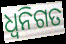
ଧ୍ୱନିଗତ